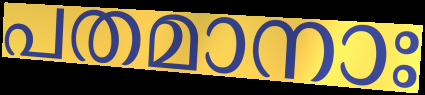
പതമാനാഃ